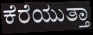
ಕೆರೆಯುತ್ತಾ